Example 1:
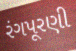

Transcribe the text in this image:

રંગપૂરણી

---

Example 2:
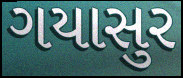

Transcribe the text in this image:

ગયાસુર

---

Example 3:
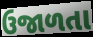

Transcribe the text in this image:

ઉજાળતા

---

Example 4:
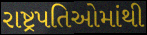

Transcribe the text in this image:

રાષ્ટ્રપતિઓમાંથી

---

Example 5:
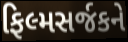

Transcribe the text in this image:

ફિલ્મસર્જકને